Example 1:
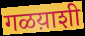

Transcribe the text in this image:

गळय़ाशी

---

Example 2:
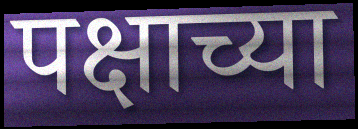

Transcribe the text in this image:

पक्षाच्या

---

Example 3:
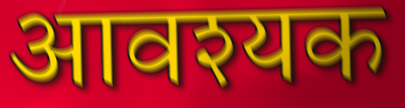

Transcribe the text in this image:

आवश्यक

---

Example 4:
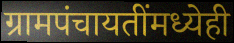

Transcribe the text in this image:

ग्रामपंचायतींमध्येही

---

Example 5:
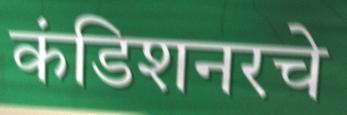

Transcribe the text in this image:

कंडिशनरचे